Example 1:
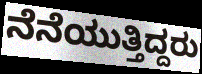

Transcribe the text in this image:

ನೆನೆಯುತ್ತಿದ್ದರು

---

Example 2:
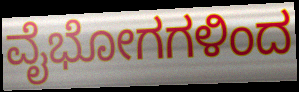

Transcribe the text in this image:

ವೈಭೋಗಗಳಿಂದ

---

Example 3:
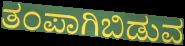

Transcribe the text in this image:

ತಂಪಾಗಿಬಿಡುವ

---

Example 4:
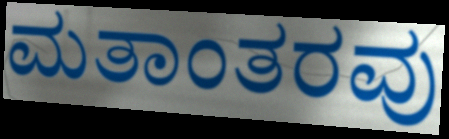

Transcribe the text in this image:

ಮತಾಂತರವು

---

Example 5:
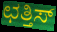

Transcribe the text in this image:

ಛತ್ತಿಸ್